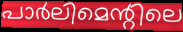
പാർലിമെന്റിലെ